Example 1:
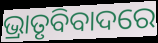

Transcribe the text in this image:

ଭ୍ରାତୃବିବାଦରେ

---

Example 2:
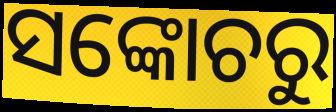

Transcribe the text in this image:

ସଙ୍କୋଚରୁ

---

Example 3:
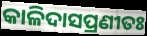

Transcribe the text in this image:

କାଳିଦାସପ୍ରଣୀତଃ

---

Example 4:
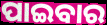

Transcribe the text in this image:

ପାଇବାର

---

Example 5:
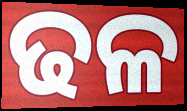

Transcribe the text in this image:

ଢଳ